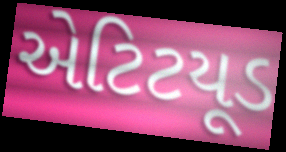
એટિટયૂડ